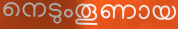
നെടുംതൂണായ